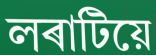
লৰাটিয়ে